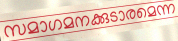
സമാഗമനക്കുടാരമെന്ന